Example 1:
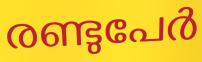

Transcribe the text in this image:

രണ്ടുപേർ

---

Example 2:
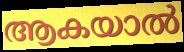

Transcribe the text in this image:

ആകയാൽ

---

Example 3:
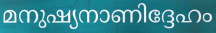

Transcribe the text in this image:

മനുഷ്യനാണിദ്ദേഹം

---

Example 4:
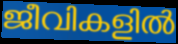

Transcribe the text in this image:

ജീവികളിൽ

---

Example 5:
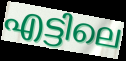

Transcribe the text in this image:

എട്ടിലെ